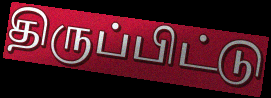
திருப்பிட்டு